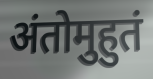
अंतोमुहुतं